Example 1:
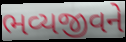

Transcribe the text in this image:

ભવ્યજીવને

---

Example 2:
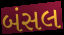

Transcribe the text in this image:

બંસલ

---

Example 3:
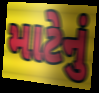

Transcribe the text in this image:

માટેનું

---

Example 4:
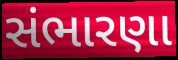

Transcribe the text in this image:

સંભારણા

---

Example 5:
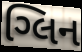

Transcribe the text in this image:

ગ્લિન